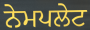
ਨੇਮਪਲੇਟ